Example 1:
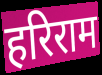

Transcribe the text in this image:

हरिराम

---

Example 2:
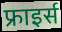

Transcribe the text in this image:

फ्राइर्स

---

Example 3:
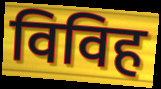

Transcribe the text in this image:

विविह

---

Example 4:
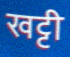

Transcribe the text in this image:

खट्टी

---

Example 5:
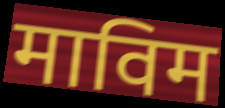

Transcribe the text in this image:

माविम